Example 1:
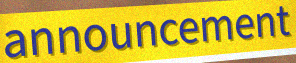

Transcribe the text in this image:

announcement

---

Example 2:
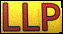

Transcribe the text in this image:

LLP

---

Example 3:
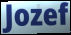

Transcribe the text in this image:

Jozef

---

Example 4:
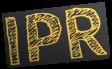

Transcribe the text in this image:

IPR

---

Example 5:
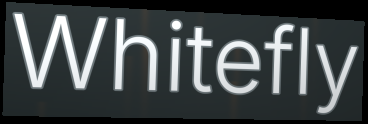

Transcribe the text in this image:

Whitefly